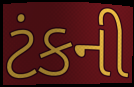
ટંકની